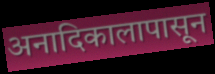
अनादिकालापासून